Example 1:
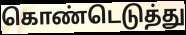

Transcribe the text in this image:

கொண்டெடுத்து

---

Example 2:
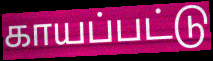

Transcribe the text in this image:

காயப்பட்டு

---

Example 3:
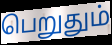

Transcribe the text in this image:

பெறுதும்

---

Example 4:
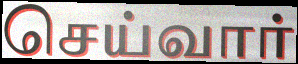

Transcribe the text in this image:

செய்வார்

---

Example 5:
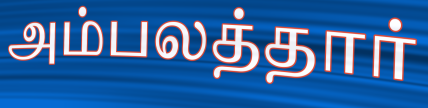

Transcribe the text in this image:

அம்பலத்தார்